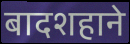
बादशहाने